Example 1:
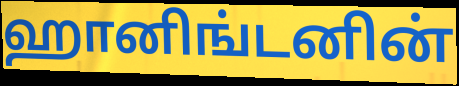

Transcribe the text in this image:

ஹானிங்டனின்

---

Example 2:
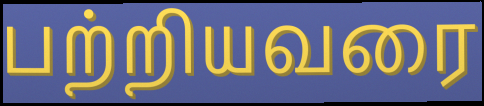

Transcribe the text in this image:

பற்றியவரை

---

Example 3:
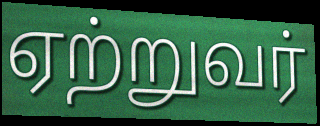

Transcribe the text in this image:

ஏற்றுவர்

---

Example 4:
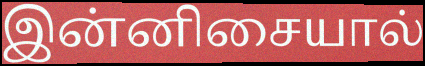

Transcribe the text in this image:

இன்னிசையால்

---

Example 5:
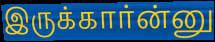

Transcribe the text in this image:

இருக்கார்ன்னு